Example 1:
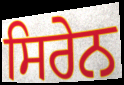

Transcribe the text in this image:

ਸਿਰੇਨ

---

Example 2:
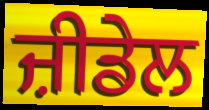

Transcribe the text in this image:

ਜ਼ੀਡੇਲ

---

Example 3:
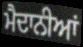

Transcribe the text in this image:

ਮੈਦਾਨੀਆਂ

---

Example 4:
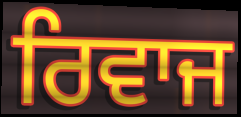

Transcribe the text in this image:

ਰਿਵਾਜ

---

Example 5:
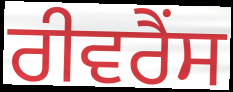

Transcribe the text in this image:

ਰੀਵਰੈਂਸ